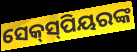
ସେକ୍‌ସ୍‌ପିୟରଙ୍କ